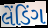
લેંડિંગ